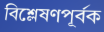
বিশ্লেষণপূর্বক